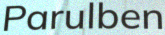
Parulben